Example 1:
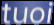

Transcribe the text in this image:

tuoi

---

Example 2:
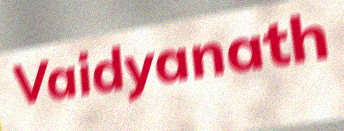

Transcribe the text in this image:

Vaidyanath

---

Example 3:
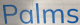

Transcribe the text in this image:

Palms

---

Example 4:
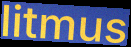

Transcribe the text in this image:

litmus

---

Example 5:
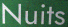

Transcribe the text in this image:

Nuits